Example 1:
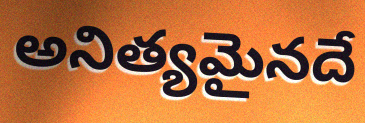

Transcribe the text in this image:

అనిత్యమైనదే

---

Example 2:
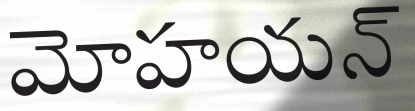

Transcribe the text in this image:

మోహయన్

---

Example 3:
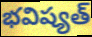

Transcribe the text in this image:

భవిష్యత్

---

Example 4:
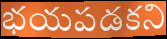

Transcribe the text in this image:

భయపడకని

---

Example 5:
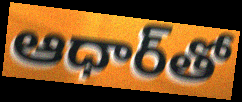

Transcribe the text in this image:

ఆధార్‌తో